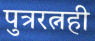
पुत्ररत्नही